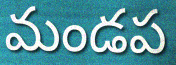
మండప